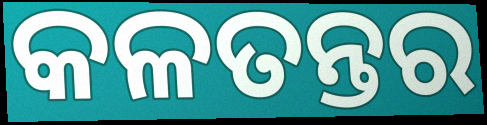
କଳତନ୍ତର